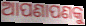
ଆପଣାପଣକୁ